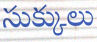
సుక్కులు